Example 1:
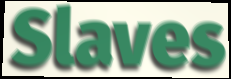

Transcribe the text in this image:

Slaves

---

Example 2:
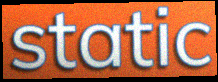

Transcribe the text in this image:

static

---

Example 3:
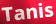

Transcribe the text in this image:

Tanis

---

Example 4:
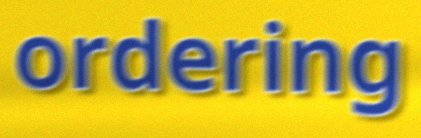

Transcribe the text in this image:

ordering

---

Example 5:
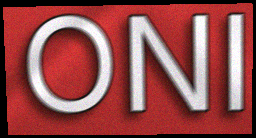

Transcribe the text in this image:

ONI